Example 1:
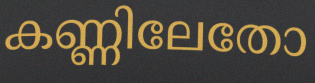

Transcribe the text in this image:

കണ്ണിലേതോ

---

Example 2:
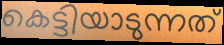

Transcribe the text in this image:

കെട്ടിയാടുന്നത്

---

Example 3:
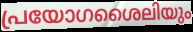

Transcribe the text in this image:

പ്രയോഗശൈലിയും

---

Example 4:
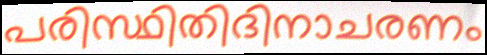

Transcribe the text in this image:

പരിസ്ഥിതിദിനാചരണം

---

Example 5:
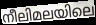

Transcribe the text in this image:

നീലിമലയിലെ